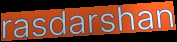
rasdarshan